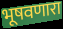
भूषवणारा